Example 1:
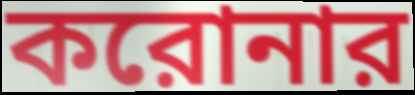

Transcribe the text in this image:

করোনার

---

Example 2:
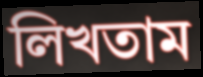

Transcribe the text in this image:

লিখতাম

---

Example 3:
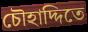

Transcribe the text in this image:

চৌহাদ্দিতে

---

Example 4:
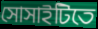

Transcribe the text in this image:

সোসাইটিতে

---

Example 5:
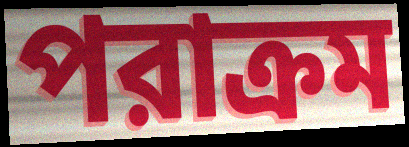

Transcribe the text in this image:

পরাক্রম